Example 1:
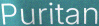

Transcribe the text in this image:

Puritan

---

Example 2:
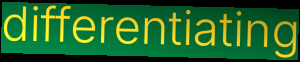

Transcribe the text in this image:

differentiating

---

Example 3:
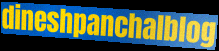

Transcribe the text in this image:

dineshpanchalblog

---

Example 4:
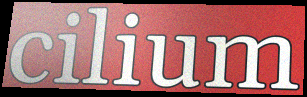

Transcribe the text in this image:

cilium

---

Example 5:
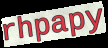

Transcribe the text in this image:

rhpapy